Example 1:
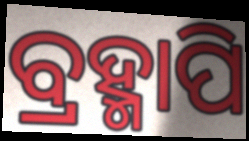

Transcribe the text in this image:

ବ୍ରହ୍ମାପି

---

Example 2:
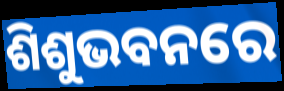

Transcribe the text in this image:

ଶିଶୁଭବନରେ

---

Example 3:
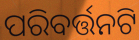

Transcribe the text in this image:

ପରିବର୍ତ୍ତନଟି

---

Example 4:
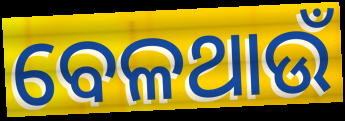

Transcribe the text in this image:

ବେଳଥାଉଁ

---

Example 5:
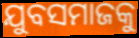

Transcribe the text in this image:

ଯୁବସମାଜକୁ